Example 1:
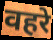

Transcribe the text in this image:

वहरे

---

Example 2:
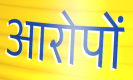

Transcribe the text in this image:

आरोपों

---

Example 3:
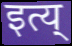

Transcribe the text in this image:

इत्य्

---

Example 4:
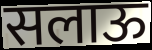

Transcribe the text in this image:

सलाऊ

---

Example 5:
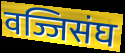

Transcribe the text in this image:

वज्जिसंघ